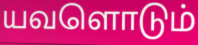
யவளொடும்